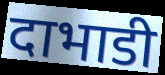
दाभाडी